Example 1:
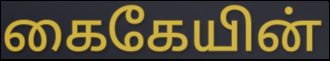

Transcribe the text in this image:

கைகேயின்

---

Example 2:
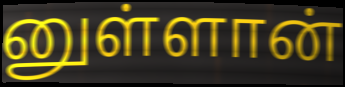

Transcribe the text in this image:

னுள்ளான்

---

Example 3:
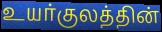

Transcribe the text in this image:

உயர்குலத்தின்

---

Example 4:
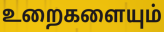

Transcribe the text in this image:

உறைகளையும்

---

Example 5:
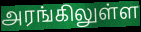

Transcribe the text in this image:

அரங்கிலுள்ள